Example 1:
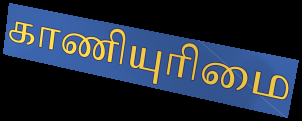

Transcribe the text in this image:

காணியுரிமை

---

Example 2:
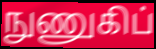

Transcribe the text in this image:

நுணுகிப்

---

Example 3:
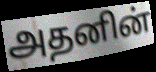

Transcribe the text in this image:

அதனின்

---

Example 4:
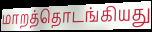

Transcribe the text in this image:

மாறத்தொடங்கியது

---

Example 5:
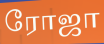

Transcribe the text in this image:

ரோஜா